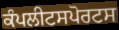
ਕੰਪਲੀਟਸਪੋਰਟਸ